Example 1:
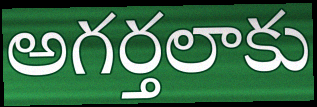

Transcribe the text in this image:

అగర్తలాకు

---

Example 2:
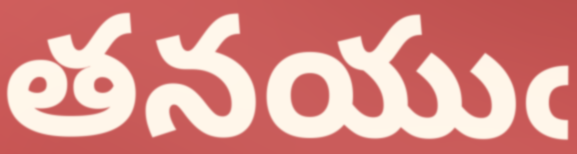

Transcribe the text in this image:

తనయుఁ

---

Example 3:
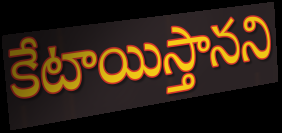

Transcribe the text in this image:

కేటాయిస్తానని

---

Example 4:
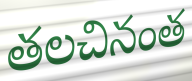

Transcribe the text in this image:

తలచినంత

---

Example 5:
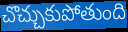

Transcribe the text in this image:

చొచ్చుకుపోతుంది